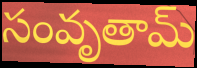
సంవృతామ్